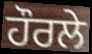
ਹੌਰਲੇ